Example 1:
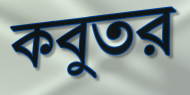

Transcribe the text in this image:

কবুতর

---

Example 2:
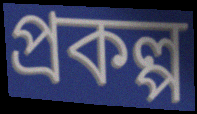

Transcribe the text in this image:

প্রকল্প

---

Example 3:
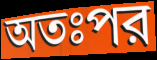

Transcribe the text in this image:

অতঃপর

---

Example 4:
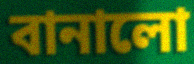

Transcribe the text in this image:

বানালো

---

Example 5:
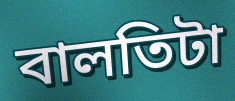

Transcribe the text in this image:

বালতিটা